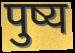
पुष्य